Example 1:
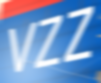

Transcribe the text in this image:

vzz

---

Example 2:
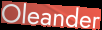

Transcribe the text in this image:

Oleander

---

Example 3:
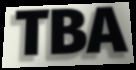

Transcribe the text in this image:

TBA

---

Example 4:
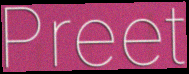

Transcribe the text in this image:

Preet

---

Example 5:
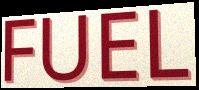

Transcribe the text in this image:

FUEL